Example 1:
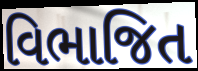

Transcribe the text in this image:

વિભાજિત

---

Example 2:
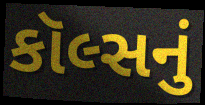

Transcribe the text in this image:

કૉલ્સનું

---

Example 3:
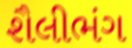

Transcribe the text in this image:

શૈલીભંગ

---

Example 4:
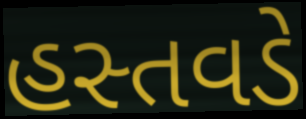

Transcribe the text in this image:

હસ્તવડે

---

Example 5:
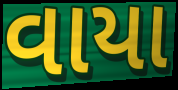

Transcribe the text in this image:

વાયા